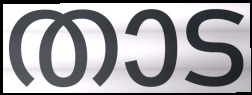
താട